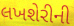
લખશેરીની